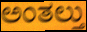
ಅಂತಲ್ತು